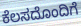
ಕೆಲಸದೊಂದಿಗೆ